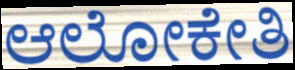
ಆಲೋಕೇತಿ